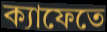
ক্যাফেতে